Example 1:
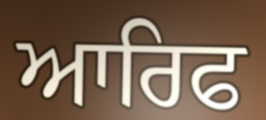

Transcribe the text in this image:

ਆਰਿਫ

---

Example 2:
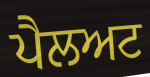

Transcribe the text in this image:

ਪੈਲਅਟ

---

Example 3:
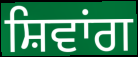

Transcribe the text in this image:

ਸ਼ਿਵਾਂਗ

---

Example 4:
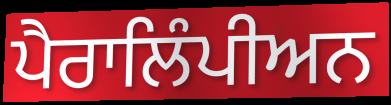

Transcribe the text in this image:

ਪੈਰਾਲਿੰਪੀਅਨ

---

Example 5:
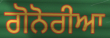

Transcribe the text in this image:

ਗੋਨੋਰੀਆ